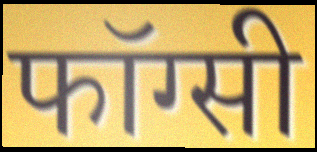
फॉग्सी